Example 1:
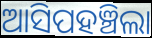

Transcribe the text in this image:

ଆସିପହଞ୍ଚିଲା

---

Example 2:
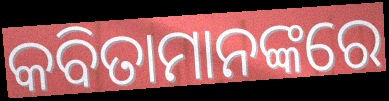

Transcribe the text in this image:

କବିତାମାନଙ୍କରେ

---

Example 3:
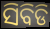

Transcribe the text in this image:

ସିବିଡି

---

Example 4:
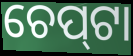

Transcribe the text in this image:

ଚେପ୍‍ଟା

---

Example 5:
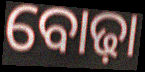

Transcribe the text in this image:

ବୋଢ଼ା